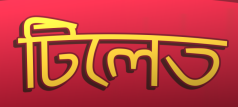
টিলেত